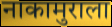
नाकामुराला